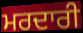
ਮਰਦਾਰੀ